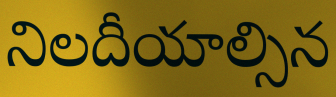
నిలదీయాల్సిన